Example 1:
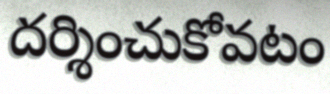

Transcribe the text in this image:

దర్శించుకోవటం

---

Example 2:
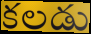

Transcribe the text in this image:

కలడు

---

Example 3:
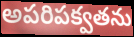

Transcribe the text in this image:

అపరిపక్వతను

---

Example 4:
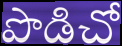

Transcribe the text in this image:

పొడిచో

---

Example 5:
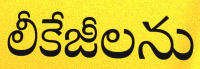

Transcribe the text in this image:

లీకేజీలను